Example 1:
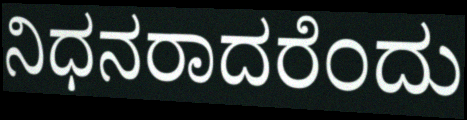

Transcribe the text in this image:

ನಿಧನರಾದರೆಂದು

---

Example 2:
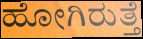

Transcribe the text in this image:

ಹೋಗಿರುತ್ತೆ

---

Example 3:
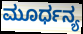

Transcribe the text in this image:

ಮೂರ್ಧನ್ಯ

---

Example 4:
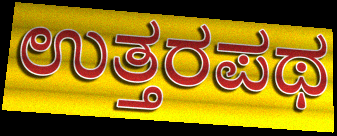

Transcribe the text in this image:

ಉತ್ತರಪಥ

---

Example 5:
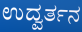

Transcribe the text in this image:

ಉದ್ವರ್ತನ